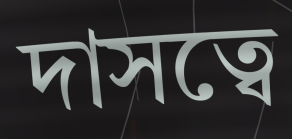
দাসত্বে